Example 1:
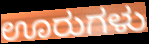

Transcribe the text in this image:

ಊರುಗಳು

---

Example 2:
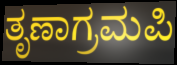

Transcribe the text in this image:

ತೃಣಾಗ್ರಮಪಿ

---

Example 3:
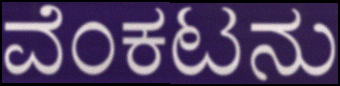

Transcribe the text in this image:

ವೆಂಕಟನು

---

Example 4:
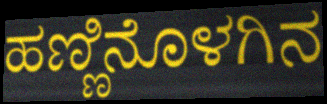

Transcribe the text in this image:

ಹಣ್ಣಿನೊಳಗಿನ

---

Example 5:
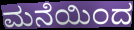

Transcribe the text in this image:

ಮನೆಯಿಂದ